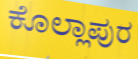
ಕೊಲ್ಲಾಪುರ